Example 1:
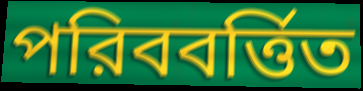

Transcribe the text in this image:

পরিববর্ত্তিত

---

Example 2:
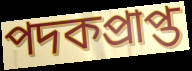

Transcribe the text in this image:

পদকপ্রাপ্ত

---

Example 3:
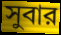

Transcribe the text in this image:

সুবার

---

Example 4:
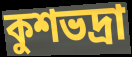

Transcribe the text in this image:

কুশভদ্রা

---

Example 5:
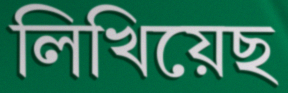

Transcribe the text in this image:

লিখিয়েছ